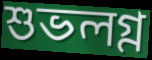
শুভলগ্ন